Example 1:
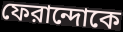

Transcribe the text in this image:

ফেরান্দোকে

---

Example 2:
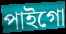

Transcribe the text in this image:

পাইগো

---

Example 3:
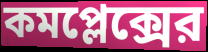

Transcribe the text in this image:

কমপ্লেক্সের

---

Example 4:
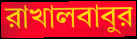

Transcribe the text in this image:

রাখালবাবুর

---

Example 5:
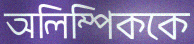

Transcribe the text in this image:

অলিম্পিককে